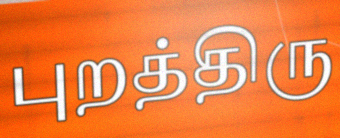
புறத்திரு